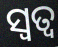
ସ୍ୱତ୍ୱ